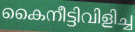
കൈനീട്ടിവിളിച്ച